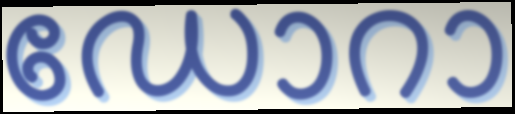
ഡോറാ